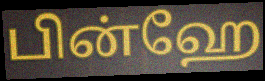
பின்ஹே